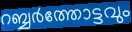
റബ്ബർത്തോട്ടവും